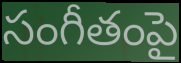
సంగీతంపై